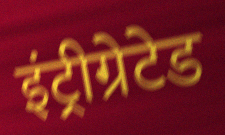
इंट्रीग्रेटेड